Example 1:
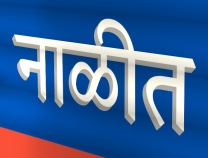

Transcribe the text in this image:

नाळीत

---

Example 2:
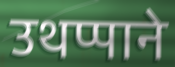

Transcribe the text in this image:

उथप्पाने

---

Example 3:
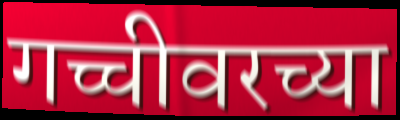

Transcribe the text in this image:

गच्चीवरच्या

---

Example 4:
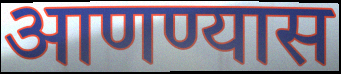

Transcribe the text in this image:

आणण्यास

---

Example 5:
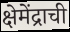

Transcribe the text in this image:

क्षेमेंद्राची